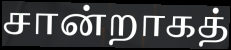
சான்றாகத்